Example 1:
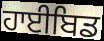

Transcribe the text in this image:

ਹਾਈਬਿਡ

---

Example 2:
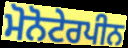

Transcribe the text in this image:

ਮੋਨੋਟੇਰਪੀਨ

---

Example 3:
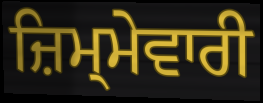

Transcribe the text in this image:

ਜ਼ਿਮ੍ਮੇਵਾਰੀ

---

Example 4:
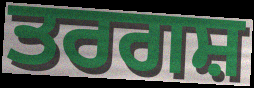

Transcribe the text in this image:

ਤਰਗਸ਼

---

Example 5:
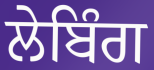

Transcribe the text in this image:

ਲੇਬਿੰਗ